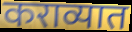
कराव्यात